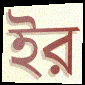
ইর